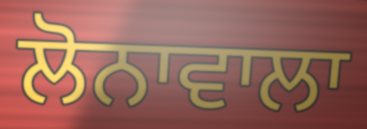
ਲੋਨਾਵਾਲਾ